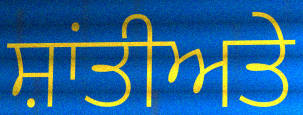
ਸ਼ਾਂਤੀਅਤੇ